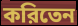
করিতেন